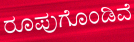
ರೂಪುಗೊಂಡಿವೆ